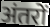
अंतरों